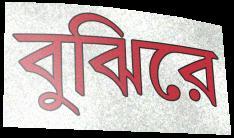
বুঝিরে